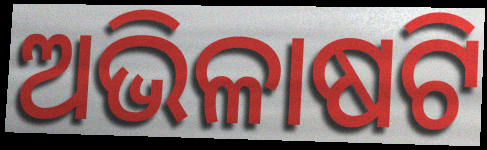
ଅଭିଳାଷଟି